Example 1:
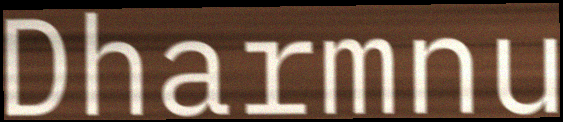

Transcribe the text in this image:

Dharmnu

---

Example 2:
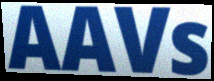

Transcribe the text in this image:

AAVs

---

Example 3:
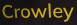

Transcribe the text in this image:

Crowley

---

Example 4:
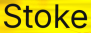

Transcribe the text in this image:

Stoke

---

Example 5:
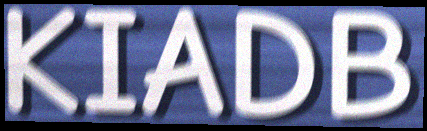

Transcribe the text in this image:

KIADB